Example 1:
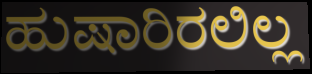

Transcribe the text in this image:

ಹುಷಾರಿರಲಿಲ್ಲ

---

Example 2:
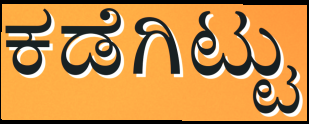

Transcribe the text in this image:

ಕಡೆಗಿಟ್ಟು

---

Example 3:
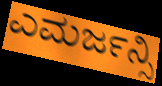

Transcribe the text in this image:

ಎಮರ್ಜನ್ಸಿ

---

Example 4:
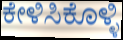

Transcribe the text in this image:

ಕೇಳಿಸಿಕೊಳ್ಳಿ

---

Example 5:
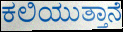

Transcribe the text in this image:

ಕಲಿಯುತ್ತಾನೆ